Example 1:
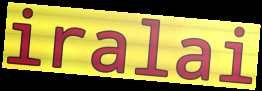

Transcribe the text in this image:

iralai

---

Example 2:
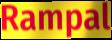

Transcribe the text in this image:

Rampal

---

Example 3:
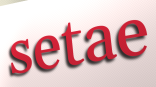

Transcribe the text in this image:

setae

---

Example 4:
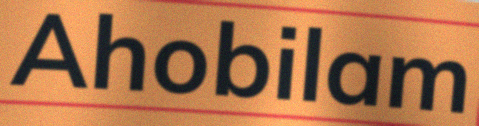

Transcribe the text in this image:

Ahobilam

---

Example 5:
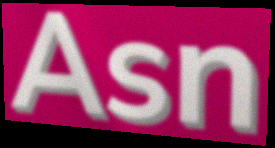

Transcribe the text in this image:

Asn